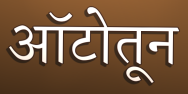
ऑटोतून